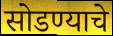
सोडण्याचे